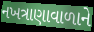
નખત્રાણાવાળાને